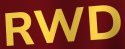
RWD